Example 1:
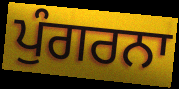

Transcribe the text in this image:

ਪੁੰਗਰਨਾ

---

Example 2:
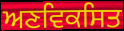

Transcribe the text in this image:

ਅਣਵਿਕਸਿਤ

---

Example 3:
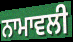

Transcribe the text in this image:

ਨਾਮਾਵਲੀ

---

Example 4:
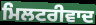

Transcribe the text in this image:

ਮਿਲਟਰੀਵਾਦ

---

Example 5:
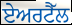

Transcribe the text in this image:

ਏਅਰਟੈੱਲ